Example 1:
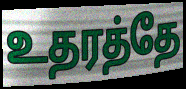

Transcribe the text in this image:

உதரத்தே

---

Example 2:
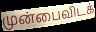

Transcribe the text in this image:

முன்பைவிடக்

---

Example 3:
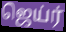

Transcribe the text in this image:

ஜெய்ர்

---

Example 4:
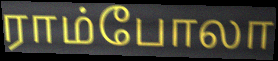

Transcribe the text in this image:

ராம்போலா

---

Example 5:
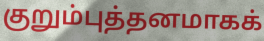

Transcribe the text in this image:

குறும்புத்தனமாகக்